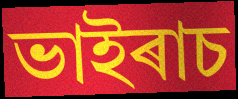
ভাইৰাচ